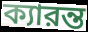
ক্যারন্ত